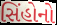
સિંહોનો